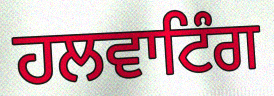
ਹਲਵਾਟਿੰਗ